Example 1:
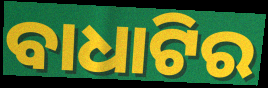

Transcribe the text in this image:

ବାଧାଟିର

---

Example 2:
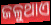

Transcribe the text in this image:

ଜଳୁଥାଏ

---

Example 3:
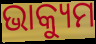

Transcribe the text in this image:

ଭାକ୍ୟୁମ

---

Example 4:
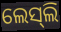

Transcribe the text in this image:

ଲେସ୍‍ଲି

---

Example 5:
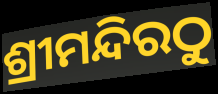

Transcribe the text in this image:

ଶ୍ରୀମନ୍ଦିରଠୁ